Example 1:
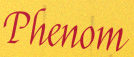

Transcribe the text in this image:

Phenom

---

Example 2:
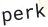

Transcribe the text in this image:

perk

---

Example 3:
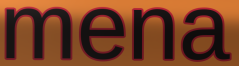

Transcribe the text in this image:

mena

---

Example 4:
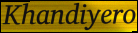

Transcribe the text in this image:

Khandiyero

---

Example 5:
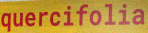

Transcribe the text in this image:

quercifolia